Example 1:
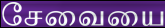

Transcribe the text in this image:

சேவையை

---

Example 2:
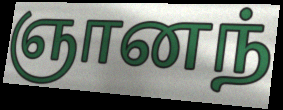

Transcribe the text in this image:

ஞானந்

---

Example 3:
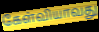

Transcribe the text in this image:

கேள்வியாவது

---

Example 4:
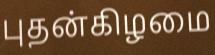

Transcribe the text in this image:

புதன்கிழமை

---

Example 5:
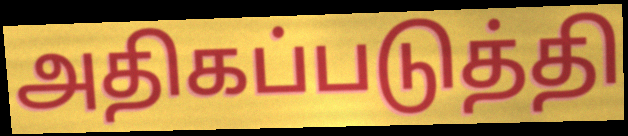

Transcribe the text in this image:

அதிகப்படுத்தி